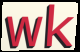
wk